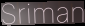
Sriman